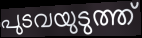
പുടവയുടുത്ത്